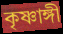
কৃষ্ণাঙ্গী